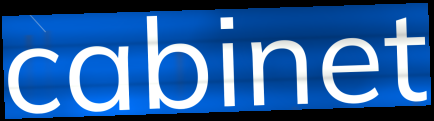
cabinet